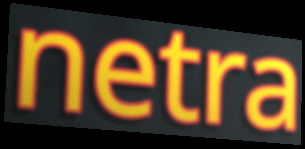
netra